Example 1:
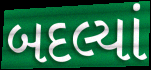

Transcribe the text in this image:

બદલ્યાં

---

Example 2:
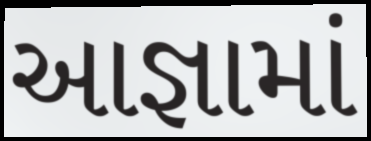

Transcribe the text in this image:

આજ્ઞામાં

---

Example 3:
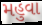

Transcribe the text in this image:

મહુવા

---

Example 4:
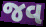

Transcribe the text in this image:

જવ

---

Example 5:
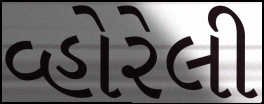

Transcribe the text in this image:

વ્હોરેલી